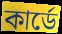
কার্ডে